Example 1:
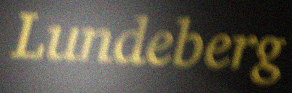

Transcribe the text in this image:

Lundeberg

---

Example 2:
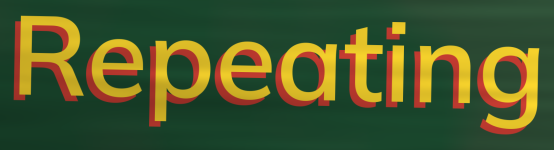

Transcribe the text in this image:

Repeating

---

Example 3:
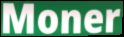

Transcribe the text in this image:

Moner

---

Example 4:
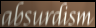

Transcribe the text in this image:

absurdism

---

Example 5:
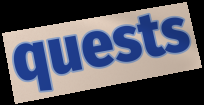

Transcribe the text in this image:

quests